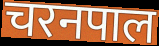
चरनपाल